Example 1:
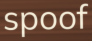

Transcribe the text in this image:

spoof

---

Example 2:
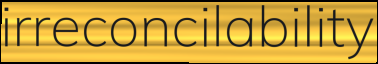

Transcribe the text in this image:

irreconcilability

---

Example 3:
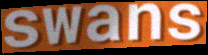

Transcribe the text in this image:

swans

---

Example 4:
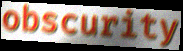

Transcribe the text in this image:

obscurity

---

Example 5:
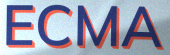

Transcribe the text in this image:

ECMA